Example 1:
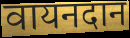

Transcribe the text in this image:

वायनदान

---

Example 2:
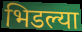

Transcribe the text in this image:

भिडल्या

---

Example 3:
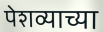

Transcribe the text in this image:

पेशव्याच्या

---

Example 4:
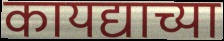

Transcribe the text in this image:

कायद्याच्या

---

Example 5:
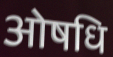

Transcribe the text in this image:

ओषधि